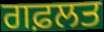
ਗਫ਼ਲਤ